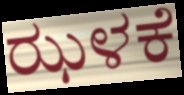
ಝಳಕೆ